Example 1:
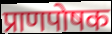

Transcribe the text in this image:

प्राणपोषक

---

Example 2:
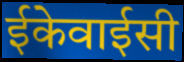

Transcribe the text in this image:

ईकेवाईसी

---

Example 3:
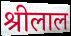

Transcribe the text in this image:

श्रीलाल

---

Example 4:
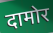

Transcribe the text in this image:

दामोर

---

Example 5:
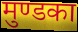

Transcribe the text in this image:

मुण्डका